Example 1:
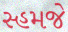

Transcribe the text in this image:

સ્હમજે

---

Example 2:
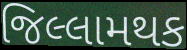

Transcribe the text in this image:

જિલ્લામથક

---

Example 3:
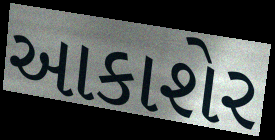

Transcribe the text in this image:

આકાશેર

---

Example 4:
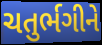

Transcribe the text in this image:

ચતુર્ભગીને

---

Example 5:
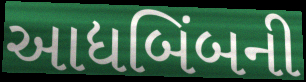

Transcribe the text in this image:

આદ્યબિંબની